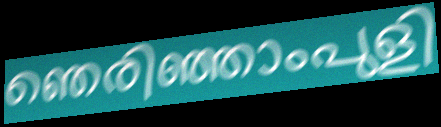
ഞെരിഞ്ഞാംപുളി